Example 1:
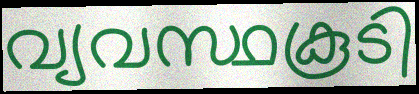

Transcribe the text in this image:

വ്യവസ്ഥകൂടി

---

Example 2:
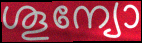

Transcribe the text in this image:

ശൂന്യോ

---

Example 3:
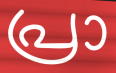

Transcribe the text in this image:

പ്രാ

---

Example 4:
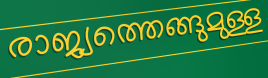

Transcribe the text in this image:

രാജ്യത്തെങ്ങുമുള്ള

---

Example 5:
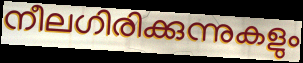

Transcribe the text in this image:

നീലഗിരിക്കുന്നുകളും